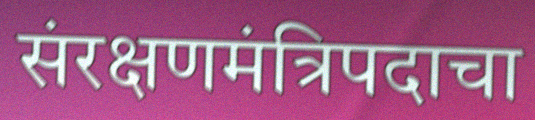
संरक्षणमंत्रिपदाचा